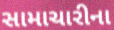
સામાચારીના